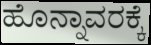
ಹೊನ್ನಾವರಕ್ಕೆ